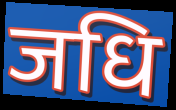
जधि